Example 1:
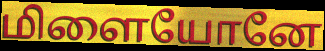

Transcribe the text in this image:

மிளையோனே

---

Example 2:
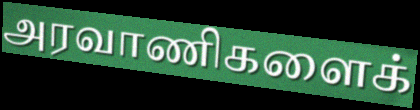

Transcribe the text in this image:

அரவாணிகளைக்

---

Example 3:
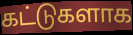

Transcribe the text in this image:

கட்டுகளாக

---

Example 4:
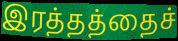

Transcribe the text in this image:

இரத்தத்தைச்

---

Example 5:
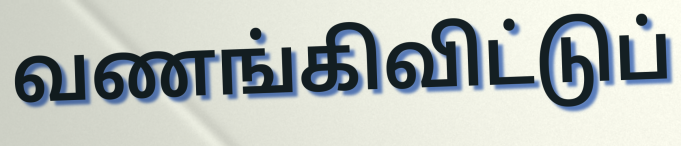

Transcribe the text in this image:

வணங்கிவிட்டுப்